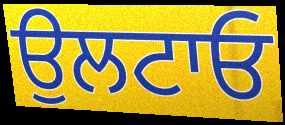
ਉਲਟਾਓ